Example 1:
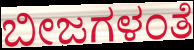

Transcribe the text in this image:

ಬೀಜಗಳಂತೆ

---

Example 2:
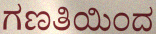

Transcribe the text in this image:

ಗಣತಿಯಿಂದ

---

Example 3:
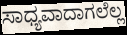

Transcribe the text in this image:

ಸಾಧ್ಯವಾದಾಗಲೆಲ್ಲ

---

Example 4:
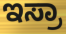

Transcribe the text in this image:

ಇಸ್ರಾ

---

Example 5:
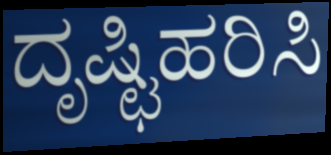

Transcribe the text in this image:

ದೃಷ್ಟಿಹರಿಸಿ